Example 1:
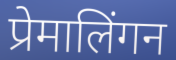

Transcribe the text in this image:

प्रेमालिंगन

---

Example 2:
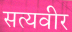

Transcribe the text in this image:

सत्यवीर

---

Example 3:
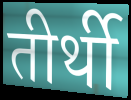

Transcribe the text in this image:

तीर्थी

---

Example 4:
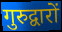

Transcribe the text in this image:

गुरुद्वारों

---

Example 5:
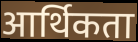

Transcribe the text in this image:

आर्थिकता